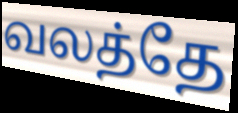
வலத்தே